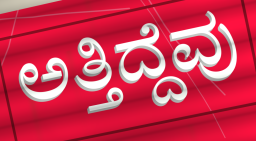
ಅತ್ತಿದ್ದೆವು